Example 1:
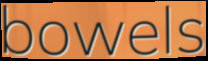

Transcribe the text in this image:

bowels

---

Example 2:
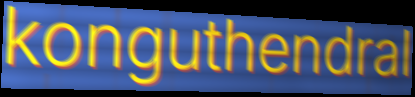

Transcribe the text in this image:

konguthendral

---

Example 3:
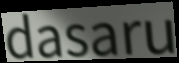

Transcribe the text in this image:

dasaru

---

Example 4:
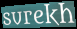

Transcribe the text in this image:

surekh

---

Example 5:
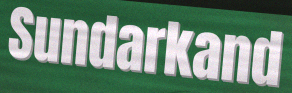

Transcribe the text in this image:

Sundarkand